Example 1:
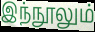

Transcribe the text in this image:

இந்நூலும்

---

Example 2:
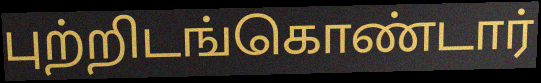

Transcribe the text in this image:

புற்றிடங்கொண்டார்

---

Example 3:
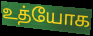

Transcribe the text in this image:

உத்யோக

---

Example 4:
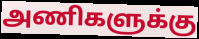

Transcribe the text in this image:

அணிகளுக்கு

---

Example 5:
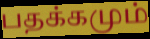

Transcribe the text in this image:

பதக்கமும்